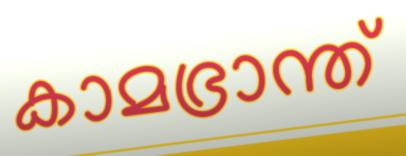
കാമഭ്രാന്ത്